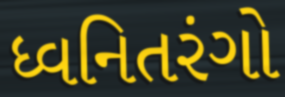
ધ્વનિતરંગો